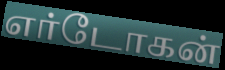
எர்டோகன்